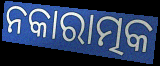
ନକାରାତ୍ମକ